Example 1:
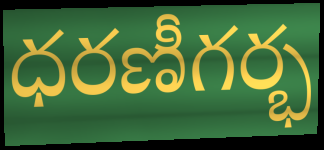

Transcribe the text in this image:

ధరణీగర్భ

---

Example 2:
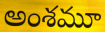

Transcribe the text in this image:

అంశమూ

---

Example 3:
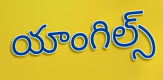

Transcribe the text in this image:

యాంగిల్స్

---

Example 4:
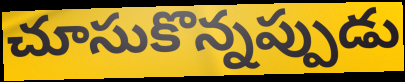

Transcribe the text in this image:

చూసుకొన్నప్పుడు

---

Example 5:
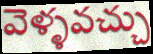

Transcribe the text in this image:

వెళ్ళవచ్చు